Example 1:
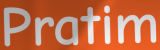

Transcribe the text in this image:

Pratim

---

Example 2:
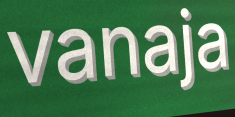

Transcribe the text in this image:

vanaja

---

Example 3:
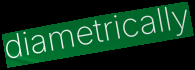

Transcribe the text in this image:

diametrically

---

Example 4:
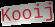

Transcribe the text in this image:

Kooij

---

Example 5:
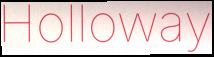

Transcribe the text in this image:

Holloway